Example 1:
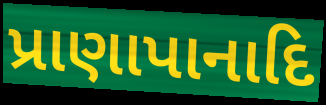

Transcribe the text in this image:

પ્રાણાપાનાદિ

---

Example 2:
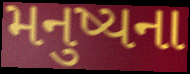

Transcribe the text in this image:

મનુષ્યના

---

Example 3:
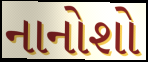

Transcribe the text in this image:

નાનોશો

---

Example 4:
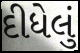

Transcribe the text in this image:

દીધેલું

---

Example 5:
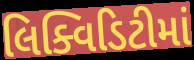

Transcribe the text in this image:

લિક્વિડિટીમાં